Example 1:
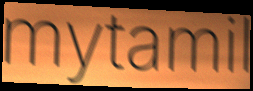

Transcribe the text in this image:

mytamil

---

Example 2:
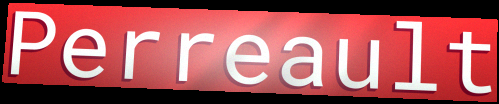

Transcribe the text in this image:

Perreault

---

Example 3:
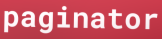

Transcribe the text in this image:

paginator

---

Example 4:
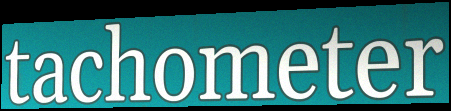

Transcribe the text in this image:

tachometer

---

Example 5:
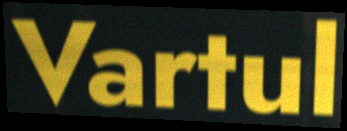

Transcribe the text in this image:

Vartul